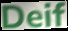
Deif